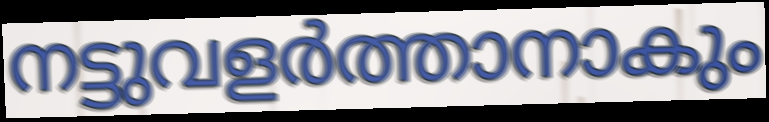
നട്ടുവളർത്താനാകും